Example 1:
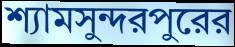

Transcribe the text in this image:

শ্যামসুন্দরপুরের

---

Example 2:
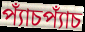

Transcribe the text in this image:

প্যাঁচপ্যাঁচ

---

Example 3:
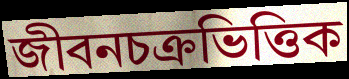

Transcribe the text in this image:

জীবনচক্রভিত্তিক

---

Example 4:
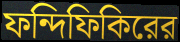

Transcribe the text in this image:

ফন্দিফিকিরের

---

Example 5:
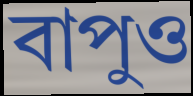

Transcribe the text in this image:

বাপুও